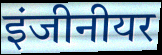
इंजीनीयर